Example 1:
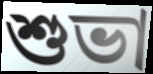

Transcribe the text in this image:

শুভা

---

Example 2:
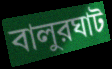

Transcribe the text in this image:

বালুরঘাট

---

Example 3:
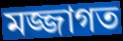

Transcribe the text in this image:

মজ্জাগত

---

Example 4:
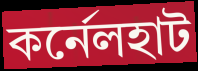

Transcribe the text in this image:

কর্নেলহাট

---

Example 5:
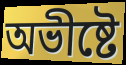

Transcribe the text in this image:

অভীষ্টে